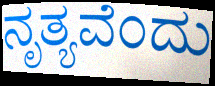
ನೃತ್ಯವೆಂದು